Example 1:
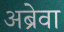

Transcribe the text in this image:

अब्रेवा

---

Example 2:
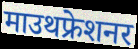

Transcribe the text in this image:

माउथफ्रेशनर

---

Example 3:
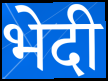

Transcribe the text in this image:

भेदी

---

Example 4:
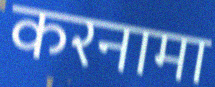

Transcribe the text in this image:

करनामा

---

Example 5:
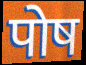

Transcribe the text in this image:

पोष